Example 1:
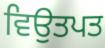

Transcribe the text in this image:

ਵਿਉਤਪਤ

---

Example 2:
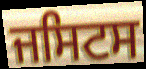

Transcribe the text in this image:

ਜਸਿਟਸ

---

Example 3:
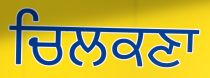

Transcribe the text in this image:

ਚਿਲਕਣਾ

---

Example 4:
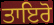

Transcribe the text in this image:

ਤਾਇਰੋ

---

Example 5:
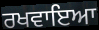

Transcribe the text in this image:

ਰਖਵਾਇਆ